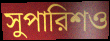
সুপারিশও